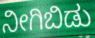
ನೀಗಿಬಿಡು